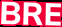
BRE